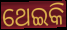
ଥେଇକି